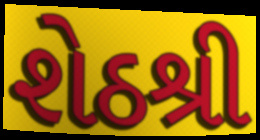
શેઠશ્રી